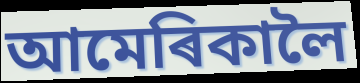
আমেৰিকালৈ